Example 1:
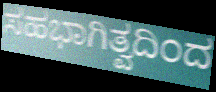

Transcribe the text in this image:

ಸಹಭಾಗಿತ್ವದಿಂದ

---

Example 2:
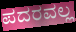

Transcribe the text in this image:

ಪದರವಲ್ಲ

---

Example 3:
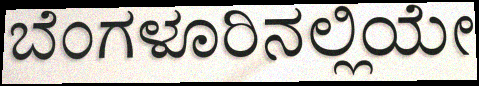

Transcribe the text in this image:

ಬೆಂಗಳೂರಿನಲ್ಲಿಯೇ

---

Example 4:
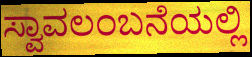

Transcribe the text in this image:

ಸ್ವಾವಲಂಬನೆಯಲ್ಲಿ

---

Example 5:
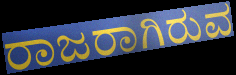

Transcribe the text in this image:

ರಾಜರಾಗಿರುವ